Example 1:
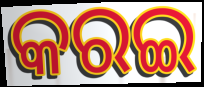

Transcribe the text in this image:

କରଇ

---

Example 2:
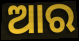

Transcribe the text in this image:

ଆର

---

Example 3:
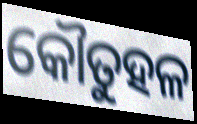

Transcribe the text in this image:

କୌତୁହଳ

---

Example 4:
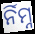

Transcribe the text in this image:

ର୍ନିମ୍ନ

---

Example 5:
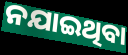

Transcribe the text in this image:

ନଯାଇଥିବା